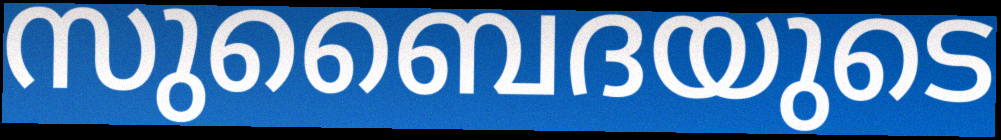
സുബൈദയുടെ